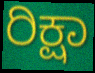
ರಿಕ್ಷಾ